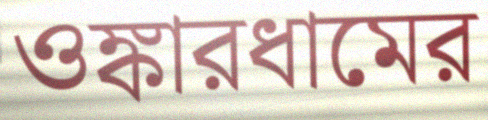
ওঙ্কারধামের